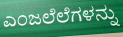
ಎಂಜಲೆಲೆಗಳನ್ನು